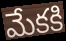
మేకకి